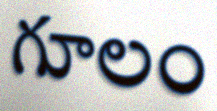
గూలం